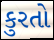
કુરતો